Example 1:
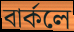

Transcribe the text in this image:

বার্কলে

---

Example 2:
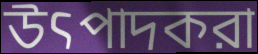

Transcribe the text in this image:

উৎপাদকরা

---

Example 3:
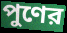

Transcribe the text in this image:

পুণের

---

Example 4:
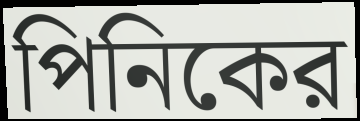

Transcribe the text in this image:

পিনিকের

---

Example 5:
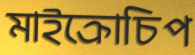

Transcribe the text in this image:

মাইক্রোচিপ